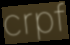
crpf